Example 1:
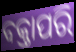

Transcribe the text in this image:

ବକ୍ତାପରି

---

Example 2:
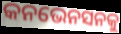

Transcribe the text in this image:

କନଭେନସନକୁ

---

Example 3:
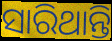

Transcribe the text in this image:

ସାରିଥାନ୍ତି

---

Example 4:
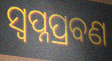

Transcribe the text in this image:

ସ୍ଵପ୍ନପ୍ରବଣ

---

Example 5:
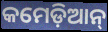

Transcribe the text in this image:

କମେଡ଼ିଆନ୍